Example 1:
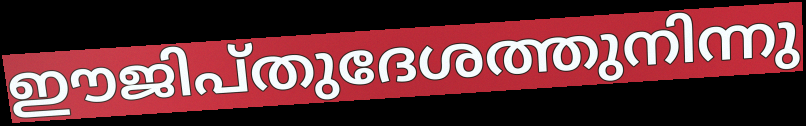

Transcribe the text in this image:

ഈജിപ്തുദേശത്തുനിന്നു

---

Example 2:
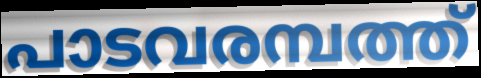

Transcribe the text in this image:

പാടവരമ്പത്ത്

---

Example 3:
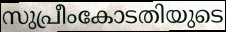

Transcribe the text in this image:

സുപ്രീംകോടതിയുടെ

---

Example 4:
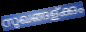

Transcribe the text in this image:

സുഖങ്ങള്ക്കും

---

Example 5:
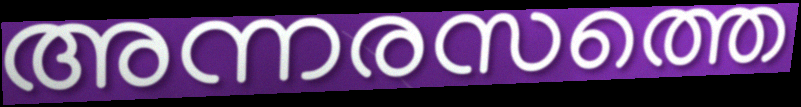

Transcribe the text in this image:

അന്നരസത്തെ